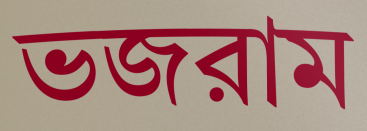
ভজরাম